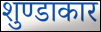
शुण्डाकार